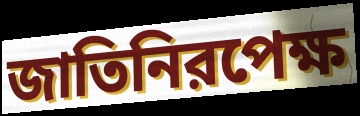
জাতিনিরপেক্ষ